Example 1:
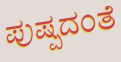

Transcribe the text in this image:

ಪುಷ್ಪದಂತೆ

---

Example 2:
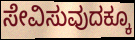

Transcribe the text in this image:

ಸೇವಿಸುವುದಕ್ಕೂ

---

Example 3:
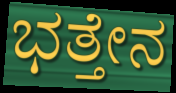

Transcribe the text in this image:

ಭತ್ತೇನ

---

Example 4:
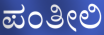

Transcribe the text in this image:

ಪಂತೀಲಿ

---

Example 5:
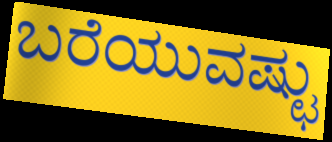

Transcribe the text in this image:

ಬರೆಯುವಷ್ಟು